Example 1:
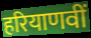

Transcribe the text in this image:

हरियाणवीं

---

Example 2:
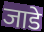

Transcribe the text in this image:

जाडे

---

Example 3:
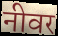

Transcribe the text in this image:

नीवर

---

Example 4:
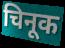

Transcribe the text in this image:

चिनूक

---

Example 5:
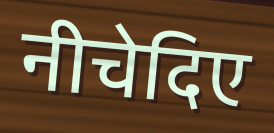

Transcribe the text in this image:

नीचेदिए